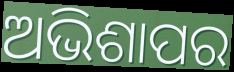
ଅଭିଶାପର